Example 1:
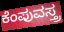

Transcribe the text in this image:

ಕೆಂಪುವಸ್ತ್ರ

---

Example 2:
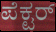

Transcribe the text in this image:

ಪೆಕ್ಟರ್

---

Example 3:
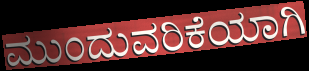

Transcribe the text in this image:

ಮುಂದುವರಿಕೆಯಾಗಿ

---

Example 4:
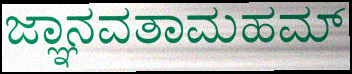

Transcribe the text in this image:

ಜ್ಞಾನವತಾಮಹಮ್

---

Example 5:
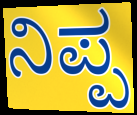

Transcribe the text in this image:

ನಿಪ್ಪ